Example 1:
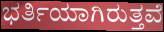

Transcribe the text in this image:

ಭರ್ತಿಯಾಗಿರುತ್ತವೆ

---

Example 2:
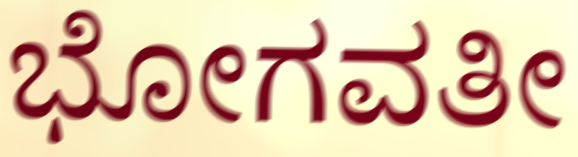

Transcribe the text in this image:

ಭೋಗವತೀ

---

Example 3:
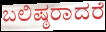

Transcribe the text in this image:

ಬಲಿಷ್ಠರಾದರೆ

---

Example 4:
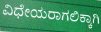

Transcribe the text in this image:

ವಿಧೇಯರಾಗಲಿಕ್ಕಾಗಿ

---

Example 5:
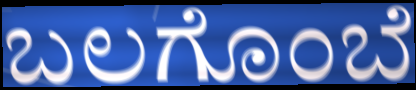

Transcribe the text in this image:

ಬಲಗೊಂಬೆ